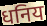
धनिय